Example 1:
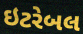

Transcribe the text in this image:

ઇટરેબલ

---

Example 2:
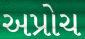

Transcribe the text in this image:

અપ્રોચ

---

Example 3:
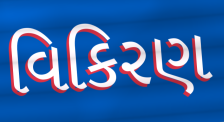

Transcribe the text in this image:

વિકિરણ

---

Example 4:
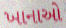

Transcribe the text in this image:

ખાનાઓ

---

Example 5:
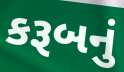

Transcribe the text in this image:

કરૂબનું